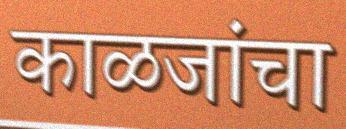
काळजांचा